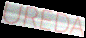
UREDA